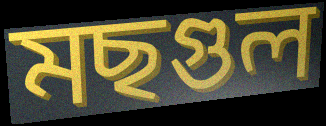
মছগুল